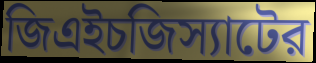
জিএইচজিস্যাটের